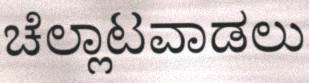
ಚೆಲ್ಲಾಟವಾಡಲು